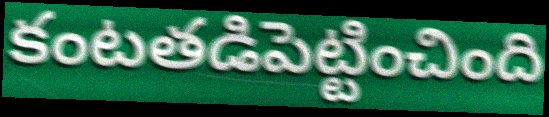
కంటతడిపెట్టించింది